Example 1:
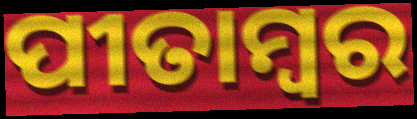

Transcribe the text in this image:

ପୀତାମ୍ବର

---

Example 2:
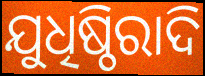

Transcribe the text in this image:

ଯୁଧିଷ୍ଠିରାଦି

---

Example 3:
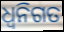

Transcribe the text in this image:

ଧ୍ଵନିଗତ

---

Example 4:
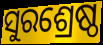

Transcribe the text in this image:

ସୁରଶ୍ରେଷ୍ଠ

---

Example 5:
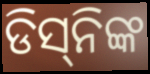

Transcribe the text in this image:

ଡିସ୍‌ନିଙ୍କ